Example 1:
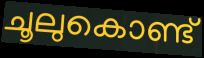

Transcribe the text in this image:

ചൂലുകൊണ്ട്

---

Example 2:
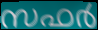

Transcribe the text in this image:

സഫർ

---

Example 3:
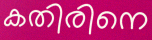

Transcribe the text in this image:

കതിരിനെ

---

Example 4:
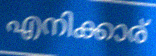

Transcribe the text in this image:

എനിക്കാര്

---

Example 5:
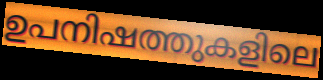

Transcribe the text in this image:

ഉപനിഷത്തുകളിലെ